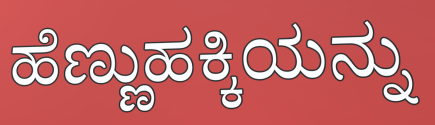
ಹೆಣ್ಣುಹಕ್ಕಿಯನ್ನು